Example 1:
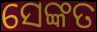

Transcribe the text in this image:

ସେଙ୍କତ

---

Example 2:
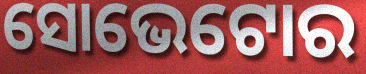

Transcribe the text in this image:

ସୋଭେଟୋର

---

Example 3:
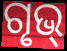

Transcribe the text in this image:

ଗୃଭ୍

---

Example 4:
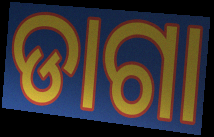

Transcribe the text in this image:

ଡାଗା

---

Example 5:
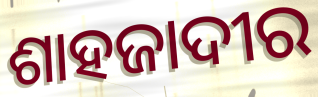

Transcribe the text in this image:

ଶାହଜାଦୀର